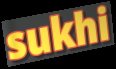
sukhi